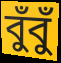
বুঁবুঁ